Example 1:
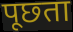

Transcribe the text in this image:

पूछ्ता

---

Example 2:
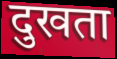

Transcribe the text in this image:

दुखता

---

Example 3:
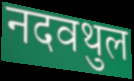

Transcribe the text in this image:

नदवथुल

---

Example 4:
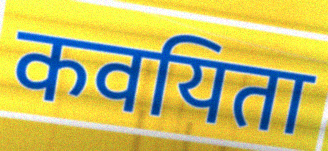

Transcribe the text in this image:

कवयिता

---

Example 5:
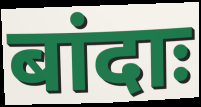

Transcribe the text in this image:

बांदाः